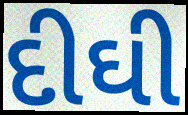
દીઘી